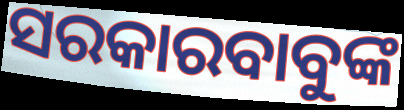
ସରକାରବାବୁଙ୍କ